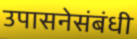
उपासनेसंबंधी